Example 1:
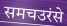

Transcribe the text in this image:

समचउरंसे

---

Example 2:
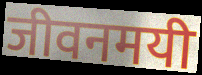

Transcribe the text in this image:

जीवनमयी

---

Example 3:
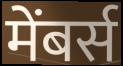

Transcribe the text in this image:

मेंबर्स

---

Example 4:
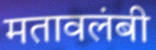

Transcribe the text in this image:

मतावलंबी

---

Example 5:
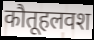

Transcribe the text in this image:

कौतूहलवश